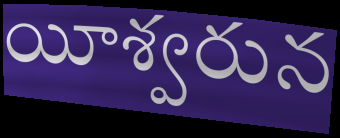
యీశ్వరున